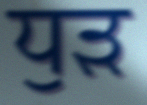
ਧੁੜ